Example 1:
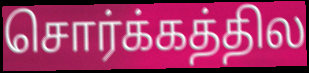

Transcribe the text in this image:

சொர்க்கத்தில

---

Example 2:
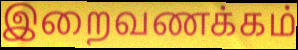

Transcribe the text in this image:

இறைவணக்கம்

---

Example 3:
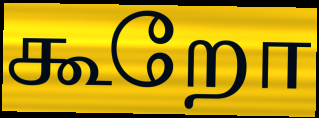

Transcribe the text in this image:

கூறோ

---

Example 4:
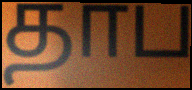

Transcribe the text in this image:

தாப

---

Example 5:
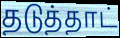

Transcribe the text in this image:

தடுத்தாட்